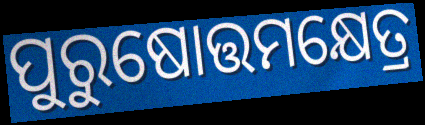
ପୁରୁଷୋତ୍ତମକ୍ଷେତ୍ର